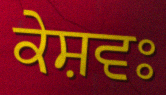
ਕੇਸ਼ਵਃ